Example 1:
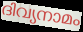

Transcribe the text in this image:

ദിവ്യനാമം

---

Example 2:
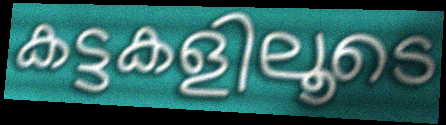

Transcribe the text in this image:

കട്ടകളിലൂടെ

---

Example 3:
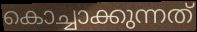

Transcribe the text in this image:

കൊച്ചാക്കുന്നത്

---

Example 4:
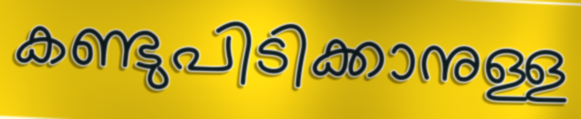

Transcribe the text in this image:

കണ്ടുപിടിക്കാനുള്ള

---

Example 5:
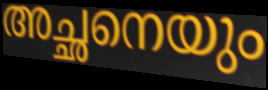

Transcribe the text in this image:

അച്ഛനെയും